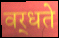
वर्धते